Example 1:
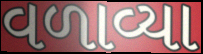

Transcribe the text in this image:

વળાવ્યા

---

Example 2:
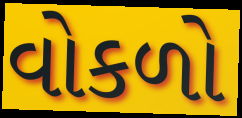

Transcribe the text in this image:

વોકળો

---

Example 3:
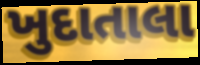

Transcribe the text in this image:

ખુદાતાલા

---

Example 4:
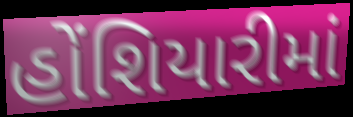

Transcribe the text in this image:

હોંશિયારીમાં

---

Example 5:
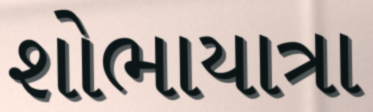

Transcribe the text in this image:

શોભાયાત્રા